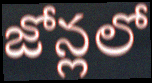
జోన్లలో